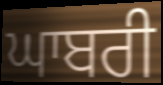
ਘਾਬਰੀ